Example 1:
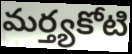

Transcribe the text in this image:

మర్త్యకోటి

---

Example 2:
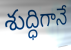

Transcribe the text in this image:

శుద్ధిగానే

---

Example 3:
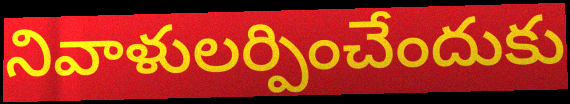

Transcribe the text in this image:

నివాళులర్పించేందుకు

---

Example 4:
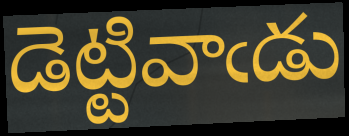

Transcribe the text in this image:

డెట్టివాఁడు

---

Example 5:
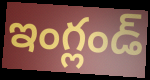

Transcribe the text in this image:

ఇంగ్లండ్